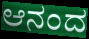
ಆನಂದ